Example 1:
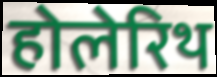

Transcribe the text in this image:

होलेरिथ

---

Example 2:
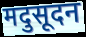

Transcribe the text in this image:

मदुसूदन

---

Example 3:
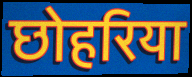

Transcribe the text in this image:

छोहरिया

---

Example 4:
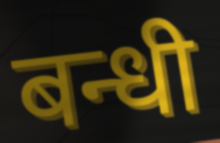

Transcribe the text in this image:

बन्धी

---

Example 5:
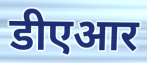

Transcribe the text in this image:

डीएआर